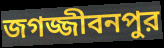
জগজ্জীবনপুর